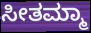
ಸೀತಮ್ಮಾ